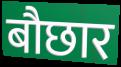
बौछार